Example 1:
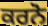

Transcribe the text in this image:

ਕਰਨੋ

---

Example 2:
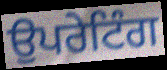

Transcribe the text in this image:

ਉਪਰੇਟਿੰਗ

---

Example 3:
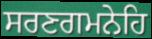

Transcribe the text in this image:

ਸਰਣਗਮਨੇਹਿ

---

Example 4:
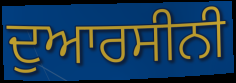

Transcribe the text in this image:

ਦੁਆਰਸੀਨੀ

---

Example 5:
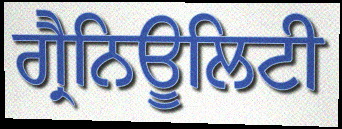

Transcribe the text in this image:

ਗ੍ਰੈਨਿਊਲਿਟੀ